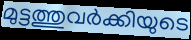
മുട്ടത്തുവർക്കിയുടെ